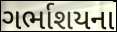
ગર્ભાશયના